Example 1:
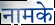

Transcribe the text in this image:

नामके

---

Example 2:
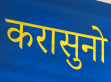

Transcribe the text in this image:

करासुनो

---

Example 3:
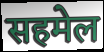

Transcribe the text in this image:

सहमेल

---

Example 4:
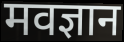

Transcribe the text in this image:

मवज्ञान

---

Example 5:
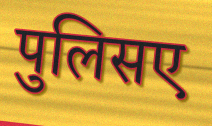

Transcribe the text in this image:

पुलिसए